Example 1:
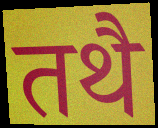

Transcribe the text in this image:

तथै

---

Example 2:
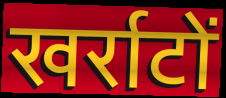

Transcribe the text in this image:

खर्राटों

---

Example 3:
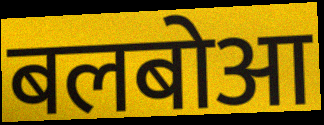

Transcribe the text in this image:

बलबोआ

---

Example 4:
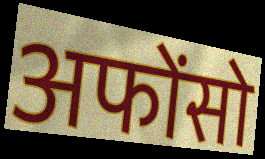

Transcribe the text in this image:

अफोंसो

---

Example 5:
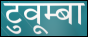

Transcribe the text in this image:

टुवूम्बा